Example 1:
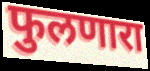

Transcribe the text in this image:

फुलणारा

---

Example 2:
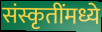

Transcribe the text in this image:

संस्कृतींमध्ये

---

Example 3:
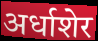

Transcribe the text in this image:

अर्धाशेर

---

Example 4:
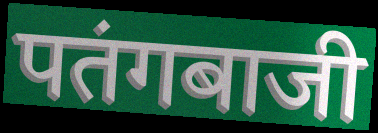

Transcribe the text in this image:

पतंगबाजी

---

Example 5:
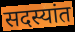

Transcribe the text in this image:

सदस्यांत